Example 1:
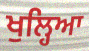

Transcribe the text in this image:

ਖੁਲ੍ਹਿਆ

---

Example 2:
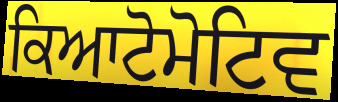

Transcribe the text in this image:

ਕਿਆਟੋਮੋਟਿਵ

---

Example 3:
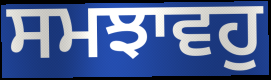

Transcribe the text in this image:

ਸਮਝਾਵਹੁ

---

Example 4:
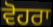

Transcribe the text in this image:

ਵੋਹਰਾ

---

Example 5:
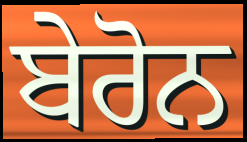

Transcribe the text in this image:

ਬੇਰੋਨ